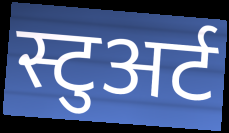
स्टुअर्ट